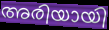
അരിയായി